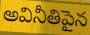
అవినీతిపైన